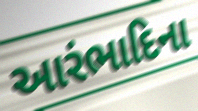
આરંભાદિના